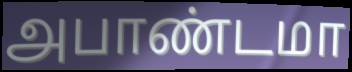
அபாண்டமா